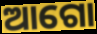
ଆଗୋ